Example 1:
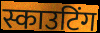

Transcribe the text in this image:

स्काउटिंग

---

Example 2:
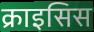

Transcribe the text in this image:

क्राइसिस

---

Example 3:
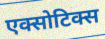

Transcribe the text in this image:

एक्सोटिक्स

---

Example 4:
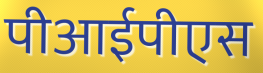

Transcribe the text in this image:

पीआईपीएस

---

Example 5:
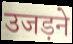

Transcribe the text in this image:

उजड़ने